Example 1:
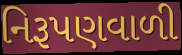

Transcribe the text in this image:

નિરૂપણવાળી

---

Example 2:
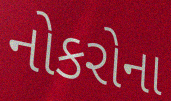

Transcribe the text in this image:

નોકરોના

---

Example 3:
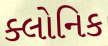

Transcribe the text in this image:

ક્લોનિક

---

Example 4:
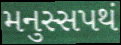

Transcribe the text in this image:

મનુસ્સપથં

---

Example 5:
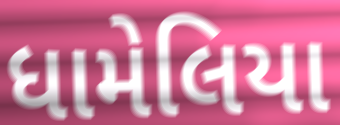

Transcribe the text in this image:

ધામેલિયા